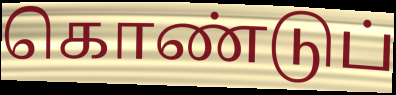
கொண்டுப்